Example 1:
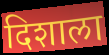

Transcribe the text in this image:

दिशाला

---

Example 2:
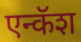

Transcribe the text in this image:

एन्कॅश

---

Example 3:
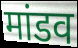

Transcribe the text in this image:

मांडव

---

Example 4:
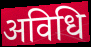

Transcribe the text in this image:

अविधि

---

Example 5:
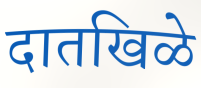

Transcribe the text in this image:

दातखिळे